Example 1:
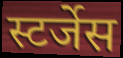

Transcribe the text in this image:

स्टर्जेस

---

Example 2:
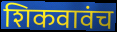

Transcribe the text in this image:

शिकवावंच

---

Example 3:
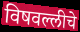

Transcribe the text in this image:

विषवल्लीचे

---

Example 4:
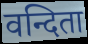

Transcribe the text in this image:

वन्दिता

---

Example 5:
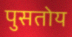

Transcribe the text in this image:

पुसतोय